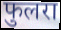
फुलरा